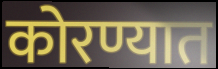
कोरण्यात